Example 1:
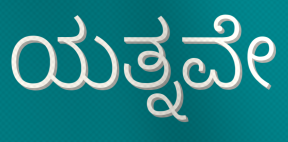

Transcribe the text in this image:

ಯತ್ನವೇ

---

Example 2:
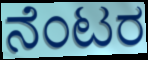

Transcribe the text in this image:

ನೆಂಟರ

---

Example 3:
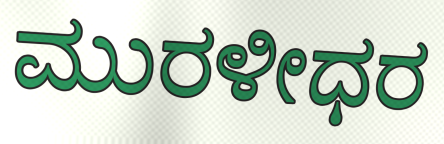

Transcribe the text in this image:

ಮುರಳೀಧರ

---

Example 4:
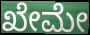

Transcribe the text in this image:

ಖೇಮೇ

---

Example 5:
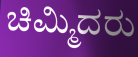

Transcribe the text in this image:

ಚಿಮ್ಮಿದರು